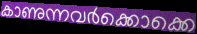
കാണുന്നവർക്കൊക്കെ